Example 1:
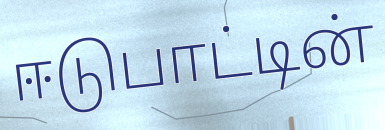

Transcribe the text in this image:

ஈடுபாட்டின்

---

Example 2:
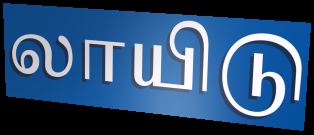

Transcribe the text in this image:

லாயிடு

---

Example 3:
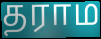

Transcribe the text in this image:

தராம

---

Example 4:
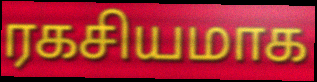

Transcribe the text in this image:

ரகசியமாக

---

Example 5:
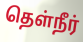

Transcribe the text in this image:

தெள்நீர்